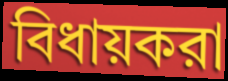
বিধায়করা